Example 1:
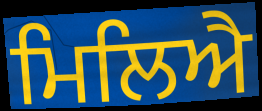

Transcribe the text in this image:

ਮਿਲਿਐ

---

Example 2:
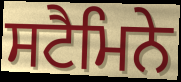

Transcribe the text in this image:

ਸਟੈਮਿਨੇ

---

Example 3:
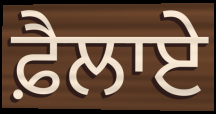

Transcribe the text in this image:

ਫ਼ੈਲਾਏ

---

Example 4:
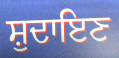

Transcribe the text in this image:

ਸ਼ੁਦਾਇਣ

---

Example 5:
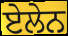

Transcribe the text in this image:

ਏਲੇਨ